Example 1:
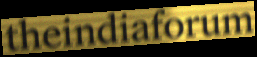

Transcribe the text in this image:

theindiaforum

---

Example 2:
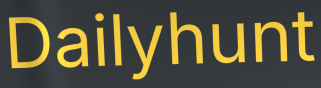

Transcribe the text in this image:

Dailyhunt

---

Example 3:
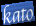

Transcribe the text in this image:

kato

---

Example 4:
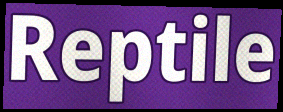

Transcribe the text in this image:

Reptile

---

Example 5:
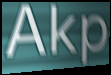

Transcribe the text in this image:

Akp